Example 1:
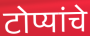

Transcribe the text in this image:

टोप्यांचे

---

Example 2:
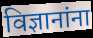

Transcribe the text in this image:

विज्ञानांना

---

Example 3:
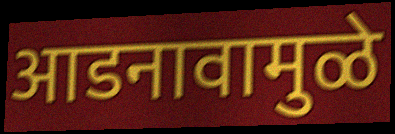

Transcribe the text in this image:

आडनावामुळे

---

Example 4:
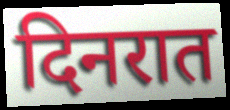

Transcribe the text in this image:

दिनरात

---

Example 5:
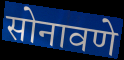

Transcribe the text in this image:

सोनावणे